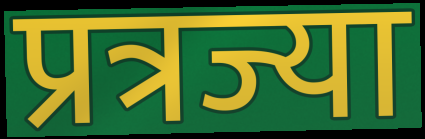
प्रत्रज्या